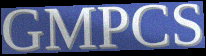
GMPCS